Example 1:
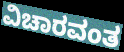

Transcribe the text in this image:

ವಿಚಾರವಂತ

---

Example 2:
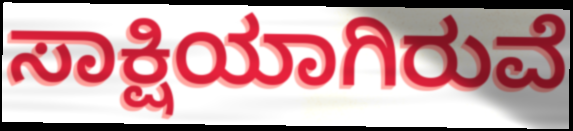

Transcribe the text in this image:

ಸಾಕ್ಷಿಯಾಗಿರುವೆ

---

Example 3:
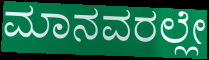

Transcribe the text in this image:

ಮಾನವರಲ್ಲೇ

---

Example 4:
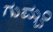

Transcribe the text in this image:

ಗುಮ್ಬಂ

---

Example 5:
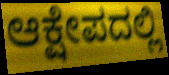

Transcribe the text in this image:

ಆಕ್ಷೇಪದಲ್ಲಿ